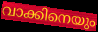
വാക്കിനെയും